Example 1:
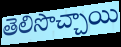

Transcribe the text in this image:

తెలిసొచ్చాయి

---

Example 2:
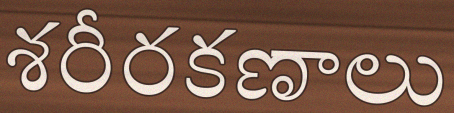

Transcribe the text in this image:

శరీరకణాలు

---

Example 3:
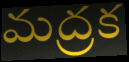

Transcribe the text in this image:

మద్రక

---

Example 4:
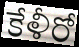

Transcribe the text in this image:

కేళీరో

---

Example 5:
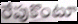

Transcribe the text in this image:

రేపుకొంటూ